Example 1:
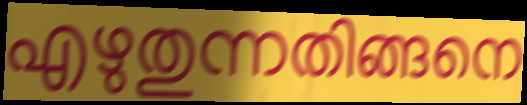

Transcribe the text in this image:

എഴുതുന്നതിങ്ങനെ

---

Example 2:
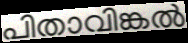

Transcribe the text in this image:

പിതാവിങ്കൽ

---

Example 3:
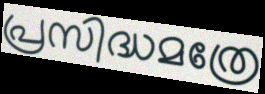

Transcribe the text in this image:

പ്രസിദ്ധമത്രേ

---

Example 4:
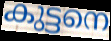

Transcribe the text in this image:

കുട്ടനെ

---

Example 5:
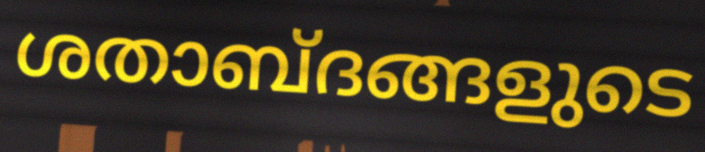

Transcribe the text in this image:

ശതാബ്ദങ്ങളുടെ